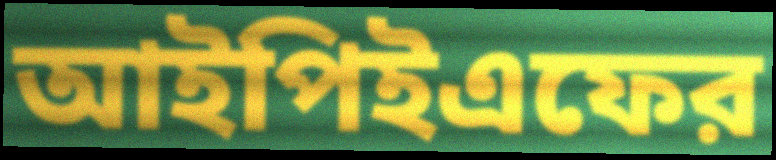
আইপিইএফের